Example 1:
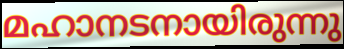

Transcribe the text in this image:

മഹാനടനായിരുന്നു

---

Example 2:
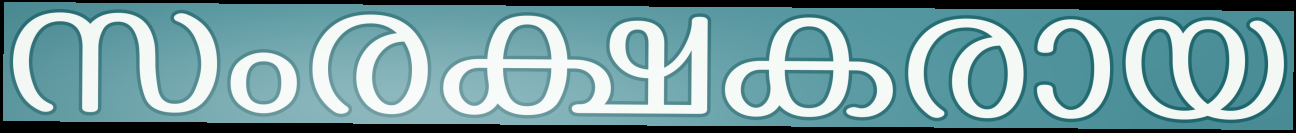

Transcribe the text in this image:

സംരക്ഷകരായ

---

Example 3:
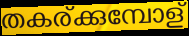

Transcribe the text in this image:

തകര്ക്കുമ്പോള്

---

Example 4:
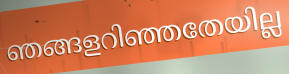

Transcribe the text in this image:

ഞങ്ങളറിഞ്ഞതേയില്ല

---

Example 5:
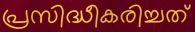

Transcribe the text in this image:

പ്രസിദ്ധീകരിച്ചത്